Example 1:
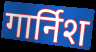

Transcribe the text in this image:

गार्निश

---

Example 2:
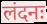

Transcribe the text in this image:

लंदनः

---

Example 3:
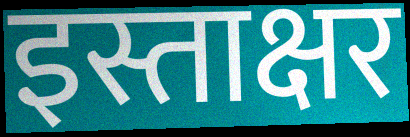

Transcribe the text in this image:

इस्ताक्षर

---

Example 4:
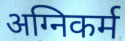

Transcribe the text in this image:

अग्निकर्म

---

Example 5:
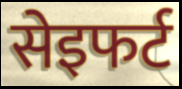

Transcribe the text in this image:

सेइफर्ट